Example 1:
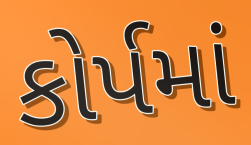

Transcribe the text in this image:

કોર્પમાં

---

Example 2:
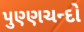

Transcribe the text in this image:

પુણ્ણચન્દો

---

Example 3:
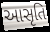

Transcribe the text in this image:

આસૃતિ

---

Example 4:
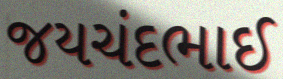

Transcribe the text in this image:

જયચંદભાઈ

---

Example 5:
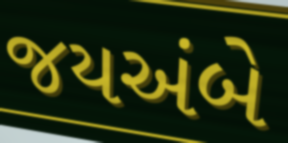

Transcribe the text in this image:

જયઅંબે